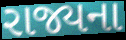
રાજ્યના